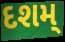
દશમ્